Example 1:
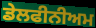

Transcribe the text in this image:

ਡੇਲਫੀਨੀਅਮ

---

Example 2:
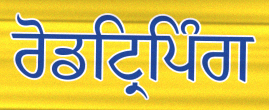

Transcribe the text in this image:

ਰੋਡਟ੍ਰਿਪਿੰਗ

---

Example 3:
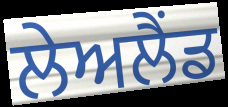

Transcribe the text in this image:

ਲੇਅਲੈਂਡ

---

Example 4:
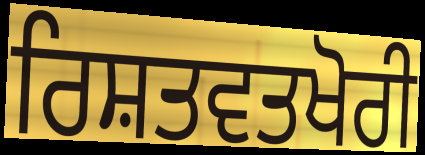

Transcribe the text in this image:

ਰਿਸ਼ਤਵਤਖੋਰੀ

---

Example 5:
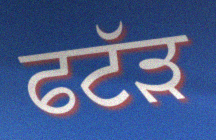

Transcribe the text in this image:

ਫਟੱੜ